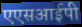
एएसआईपी